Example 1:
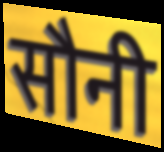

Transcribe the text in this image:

सौनी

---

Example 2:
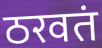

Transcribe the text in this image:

ठरवतं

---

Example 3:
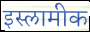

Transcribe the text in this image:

इस्लामीक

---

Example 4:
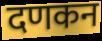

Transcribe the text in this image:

दणकन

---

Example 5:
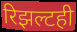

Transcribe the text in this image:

रिझल्टही